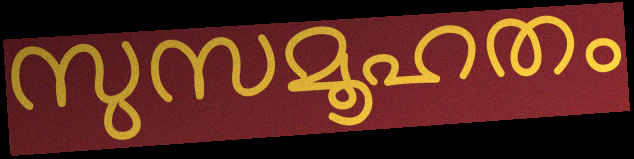
സുസമൂഹതം